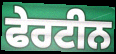
ਫੇਰਟੀਨ